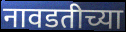
नावडतीच्या